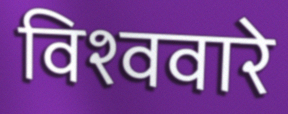
विश्ववारे